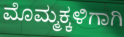
ಮೊಮ್ಮಕ್ಕಳಿಗಾಗಿ